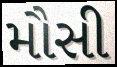
મૌસી